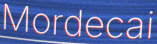
Mordecai